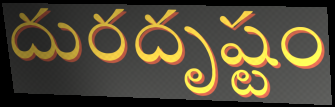
దురదృష్టం